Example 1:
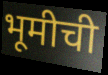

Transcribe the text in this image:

भूमीची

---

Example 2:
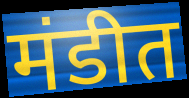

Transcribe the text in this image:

मंडीत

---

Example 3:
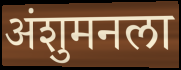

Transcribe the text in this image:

अंशुमनला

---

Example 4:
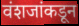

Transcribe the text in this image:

वंशजांकडून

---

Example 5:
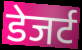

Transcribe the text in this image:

डेजर्ट